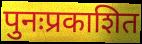
पुनःप्रकाशित